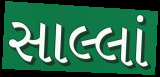
સાલ્લાં